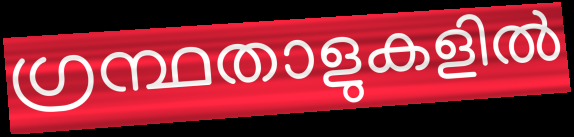
ഗ്രന്ഥതാളുകളിൽ